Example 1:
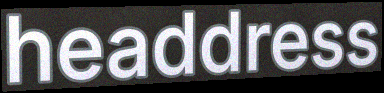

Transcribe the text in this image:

headdress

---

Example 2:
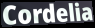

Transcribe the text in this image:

Cordelia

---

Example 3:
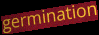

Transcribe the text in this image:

germination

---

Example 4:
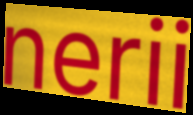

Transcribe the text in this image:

nerii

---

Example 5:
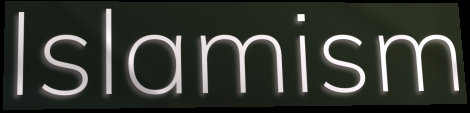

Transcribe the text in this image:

Islamism